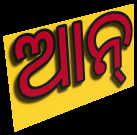
ଆନ୍